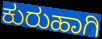
ಕುರುಹಾಗಿ